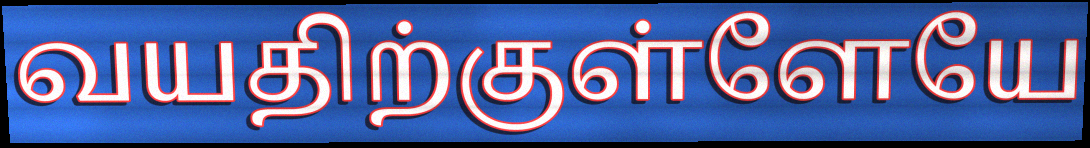
வயதிற்குள்ளேயே